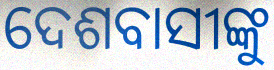
ଦେଶବାସୀଙ୍କୁ